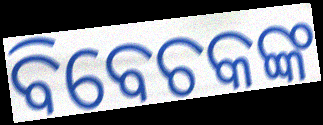
ବିବେଚକଙ୍କ